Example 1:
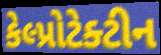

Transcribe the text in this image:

કેલ્પ્રોટેક્ટીન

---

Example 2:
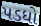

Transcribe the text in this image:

પડધો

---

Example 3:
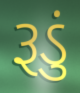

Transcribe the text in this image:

રૂડું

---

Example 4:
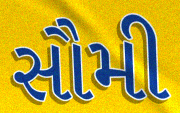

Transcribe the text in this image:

સૌમી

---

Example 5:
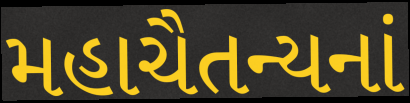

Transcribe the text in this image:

મહાચૈતન્યનાં